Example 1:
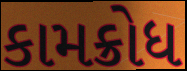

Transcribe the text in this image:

કામક્રોધ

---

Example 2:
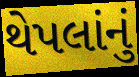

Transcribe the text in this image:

થેપલાંનું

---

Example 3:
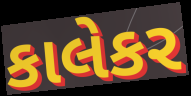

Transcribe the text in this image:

કાલેકર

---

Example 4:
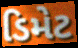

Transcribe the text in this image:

ડિમેટ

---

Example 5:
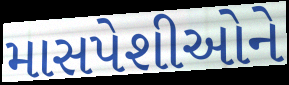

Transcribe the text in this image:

માસપેશીઓને